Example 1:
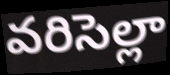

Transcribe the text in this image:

వరిసెల్లా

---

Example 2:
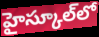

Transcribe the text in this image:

హైస్కూల్‌లో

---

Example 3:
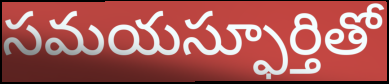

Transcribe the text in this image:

సమయస్ఫూర్తితో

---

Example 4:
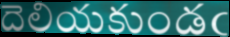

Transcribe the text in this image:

దెలియకుండఁ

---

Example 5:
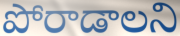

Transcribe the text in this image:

పోరాడాలని